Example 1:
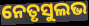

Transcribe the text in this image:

ନେତୃସୁଲଭ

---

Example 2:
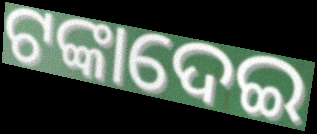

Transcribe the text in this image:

ଟଙ୍କାଦେଇ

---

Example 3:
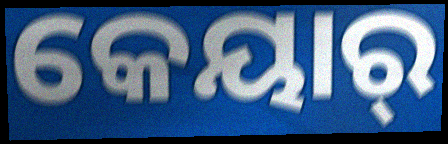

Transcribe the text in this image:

କେୟାର୍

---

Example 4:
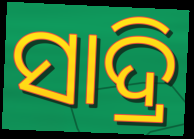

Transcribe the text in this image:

ସାଦ୍ରି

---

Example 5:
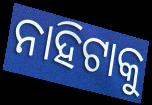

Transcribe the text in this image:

ନାହିଟାକୁ